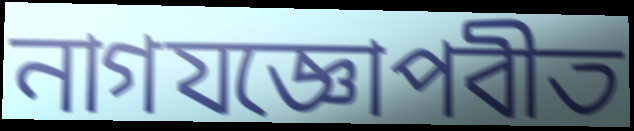
নাগযজ্ঞোপবীত